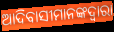
ଆଦିବାସୀମାନଙ୍କଦ୍ୱାରା